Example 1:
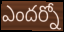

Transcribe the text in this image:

ఎందర్నో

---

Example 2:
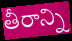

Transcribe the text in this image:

తీరాన్ని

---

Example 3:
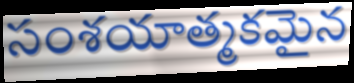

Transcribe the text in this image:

సంశయాత్మకమైన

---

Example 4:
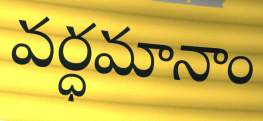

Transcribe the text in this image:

వర్ధమానాం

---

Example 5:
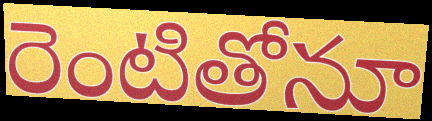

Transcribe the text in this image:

రెంటితోనూ